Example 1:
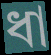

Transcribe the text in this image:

ধা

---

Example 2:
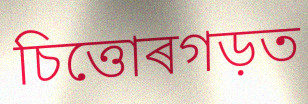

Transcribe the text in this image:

চিত্তোৰগড়ত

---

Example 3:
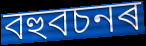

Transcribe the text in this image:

বহুবচনৰ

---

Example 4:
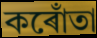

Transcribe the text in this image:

কৰোঁতা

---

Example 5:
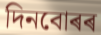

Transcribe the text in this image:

দিনবোৰৰ